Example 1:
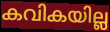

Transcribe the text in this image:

കവികയില്ല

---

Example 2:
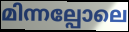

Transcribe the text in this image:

മിന്നല്പോലെ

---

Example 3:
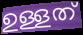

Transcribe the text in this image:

ഉള്ളത്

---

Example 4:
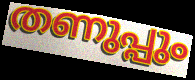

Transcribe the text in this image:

തണുപ്പും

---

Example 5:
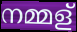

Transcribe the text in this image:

നമ്മള്